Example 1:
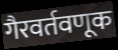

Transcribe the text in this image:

गैरवर्तवणूक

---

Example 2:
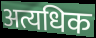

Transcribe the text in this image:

अत्यधिक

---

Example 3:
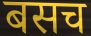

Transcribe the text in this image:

बसच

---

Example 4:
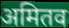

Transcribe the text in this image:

अमितव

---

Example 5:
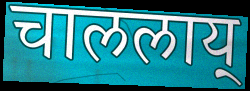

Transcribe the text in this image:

चाललाय्